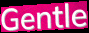
Gentle